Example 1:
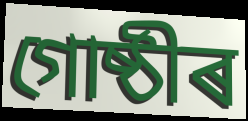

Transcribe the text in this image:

গোষ্ঠীৰ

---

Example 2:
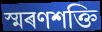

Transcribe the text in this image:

স্মৰণশক্তি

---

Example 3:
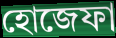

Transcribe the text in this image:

হোজেফা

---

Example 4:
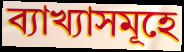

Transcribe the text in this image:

ব্যাখ্যাসমূহে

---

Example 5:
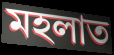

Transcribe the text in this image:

মহলাত